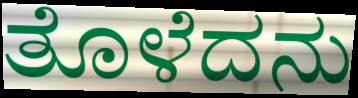
ತೊಳೆದನು